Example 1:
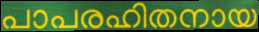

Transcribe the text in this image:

പാപരഹിതനായ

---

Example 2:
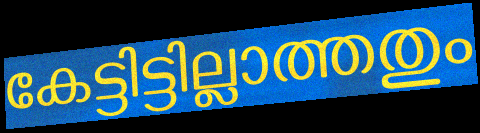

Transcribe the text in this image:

കേട്ടിട്ടില്ലാത്തതും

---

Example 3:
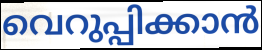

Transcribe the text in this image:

വെറുപ്പിക്കാൻ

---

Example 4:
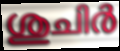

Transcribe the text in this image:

ശുചിർ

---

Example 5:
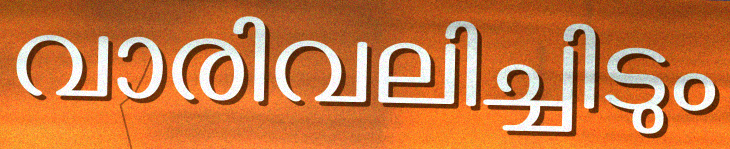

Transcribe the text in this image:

വാരിവലിച്ചിടും